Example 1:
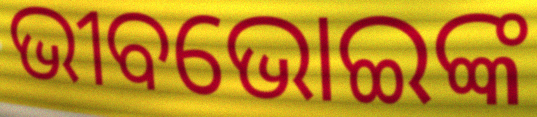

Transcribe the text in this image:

ଭୀବଭୋଇଙ୍କ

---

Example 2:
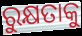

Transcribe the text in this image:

ରୁକ୍ଷତାକୁ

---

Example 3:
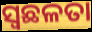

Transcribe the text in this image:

ସ୍ୱଛଳତା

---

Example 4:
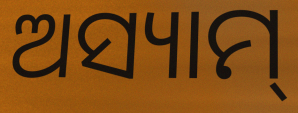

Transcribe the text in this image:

ଅସ୍ୟାମ୍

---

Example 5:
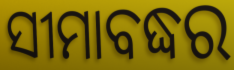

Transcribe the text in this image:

ସୀମାବଦ୍ଧର